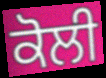
ਕੋਲੀ